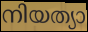
നിയത്യാ